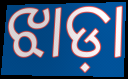
ଝାଡ଼ା